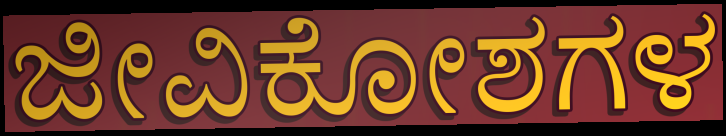
ಜೀವಿಕೋಶಗಳ